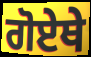
ਗੋਏਥੇ